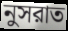
নুসরাত